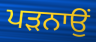
ਪਡ਼ਨਾਉਂ